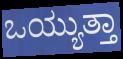
ಒಯ್ಯುತ್ತಾ